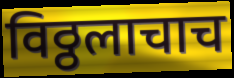
विठ्ठलाचाच